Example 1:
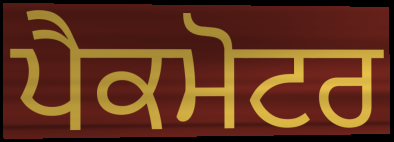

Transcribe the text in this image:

ਪੈਕਮੋਟਰ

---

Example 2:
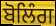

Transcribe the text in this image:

ਬੋਲਿੰਗ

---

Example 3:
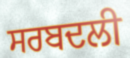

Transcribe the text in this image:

ਸਰਬਦਲੀ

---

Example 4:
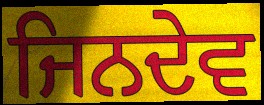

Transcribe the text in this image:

ਜਿਨਦੇਵ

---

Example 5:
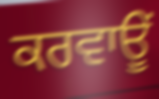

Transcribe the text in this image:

ਕਰਵਾਊਂ